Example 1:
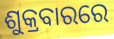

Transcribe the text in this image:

ଶୁକ୍ରବାରରେ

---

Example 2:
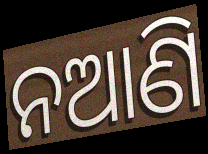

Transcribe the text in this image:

ନଆଣି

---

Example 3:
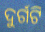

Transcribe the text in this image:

ଦୁର୍ଗଟି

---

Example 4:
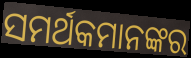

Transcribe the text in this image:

ସମର୍ଥକମାନଙ୍କର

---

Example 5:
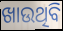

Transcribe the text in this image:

ଖାଉଥିବି